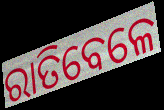
ରାତିବେଳେ